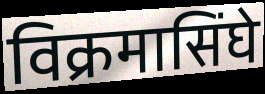
विक्रमासिंघे